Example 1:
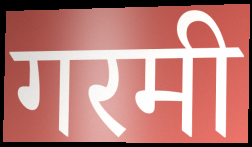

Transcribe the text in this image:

गरमी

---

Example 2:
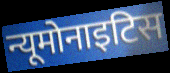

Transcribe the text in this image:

न्यूमोनाइटिस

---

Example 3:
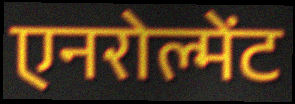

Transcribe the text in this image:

एनरोल्मेंट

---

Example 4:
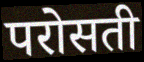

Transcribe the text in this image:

परोसती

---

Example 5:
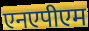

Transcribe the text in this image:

एनएपीएम